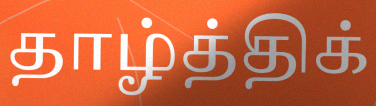
தாழ்த்திக்